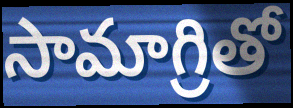
సామాగ్రితో